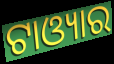
ଟାଓ୍ୟାର